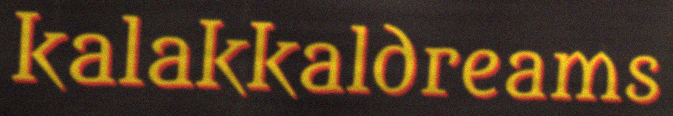
kalakkaldreams